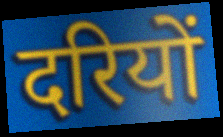
दरियों